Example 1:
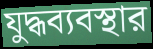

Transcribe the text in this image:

যুদ্ধব্যবস্থার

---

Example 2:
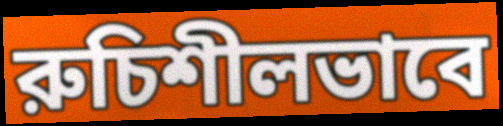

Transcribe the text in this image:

রুচিশীলভাবে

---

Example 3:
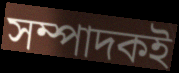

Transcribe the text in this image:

সম্পাদকই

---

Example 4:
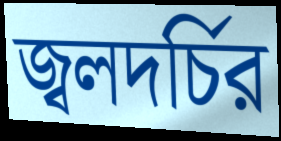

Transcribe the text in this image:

জ্বলদর্চির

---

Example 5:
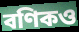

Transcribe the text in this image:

বণিকও